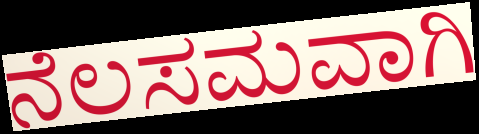
ನೆಲಸಮವಾಗಿ